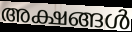
അക്ഷങ്ങൾ